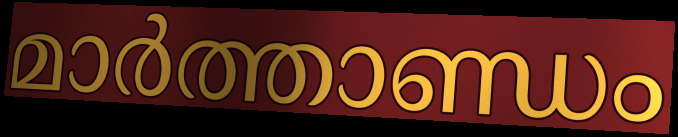
മാർത്താണ്ഡം